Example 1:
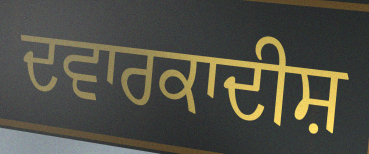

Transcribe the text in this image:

ਦਵਾਰਕਾਦੀਸ਼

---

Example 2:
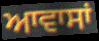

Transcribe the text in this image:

ਆਵਾਸਾਂ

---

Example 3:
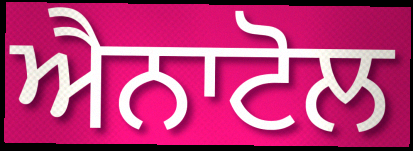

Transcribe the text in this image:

ਐਨਾਟੋਲ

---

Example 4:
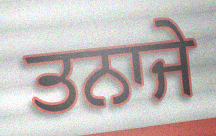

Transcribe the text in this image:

ਤਨਾਜੇ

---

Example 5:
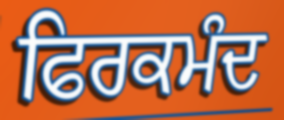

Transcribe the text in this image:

ਫਿਰਕਮੰਦ